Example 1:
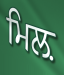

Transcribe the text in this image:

ਮਿਲ਼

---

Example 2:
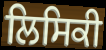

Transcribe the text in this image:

ਲਿਸਿਕੀ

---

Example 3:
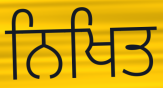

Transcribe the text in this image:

ਨਿਖਿਤ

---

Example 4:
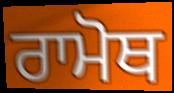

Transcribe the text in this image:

ਰਾਮੋਥ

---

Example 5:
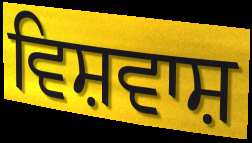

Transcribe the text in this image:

ਵਿਸ਼ਵਾਸ਼